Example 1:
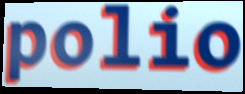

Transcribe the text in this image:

polio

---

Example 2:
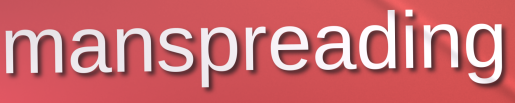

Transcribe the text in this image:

manspreading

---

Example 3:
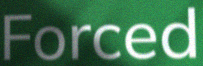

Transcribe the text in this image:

Forced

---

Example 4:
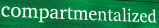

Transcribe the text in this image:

compartmentalized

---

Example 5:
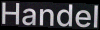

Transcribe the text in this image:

Handel